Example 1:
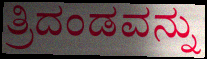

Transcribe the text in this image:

ತ್ರಿದಂಡವನ್ನು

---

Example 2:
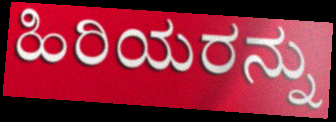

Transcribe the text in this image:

ಹಿರಿಯರನ್ನು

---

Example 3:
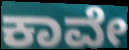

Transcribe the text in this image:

ಕಾವೇ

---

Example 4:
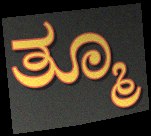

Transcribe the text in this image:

ತ್ಮೂ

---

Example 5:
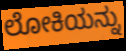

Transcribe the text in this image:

ಲೋಕಿಯನ್ನು